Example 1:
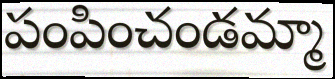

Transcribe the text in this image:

పంపించండమ్మా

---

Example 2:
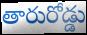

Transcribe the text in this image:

తారురోడ్డు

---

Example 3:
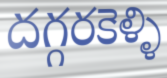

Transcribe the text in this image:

దగ్గరకెళ్ళి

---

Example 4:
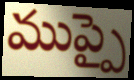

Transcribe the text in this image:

ముప్పై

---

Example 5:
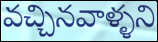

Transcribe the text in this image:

వచ్చినవాళ్ళని